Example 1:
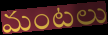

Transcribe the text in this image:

మంటలు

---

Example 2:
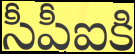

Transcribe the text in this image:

సీపీఐకి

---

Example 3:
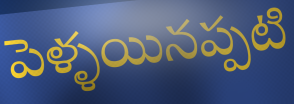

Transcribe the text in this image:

పెళ్ళయినప్పటి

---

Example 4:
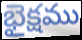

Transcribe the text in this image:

భైక్షము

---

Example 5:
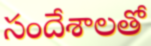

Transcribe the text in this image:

సందేశాలతో